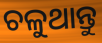
ଚଳୁଥାନ୍ତୁ